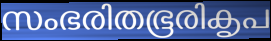
സംഭരിതഭൂരികൃപ